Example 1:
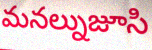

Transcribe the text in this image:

మనల్నుజూసి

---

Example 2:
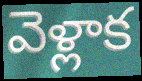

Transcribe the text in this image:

వెళ్లాక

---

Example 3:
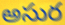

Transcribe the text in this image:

అసుర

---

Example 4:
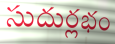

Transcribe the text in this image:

సుదుర్లభం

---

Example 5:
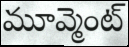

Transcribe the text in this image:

మూవ్మెంట్